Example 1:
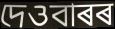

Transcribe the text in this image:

দেওবাৰৰ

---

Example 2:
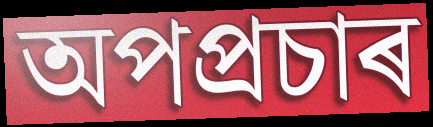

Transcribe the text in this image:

অপপ্ৰচাৰ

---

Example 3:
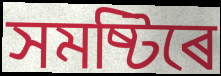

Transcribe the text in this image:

সমষ্টিৰে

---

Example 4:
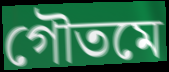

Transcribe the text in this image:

গৌতমে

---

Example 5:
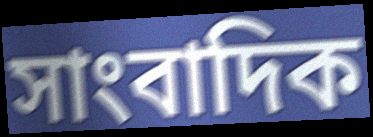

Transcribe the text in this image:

সাংবাদিক